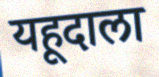
यहूदाला